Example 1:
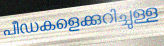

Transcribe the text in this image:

പീഡകളെക്കുറിച്ചുള്ള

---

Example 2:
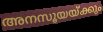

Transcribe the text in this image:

അനസൂയയ്ക്കും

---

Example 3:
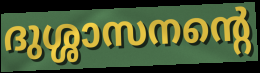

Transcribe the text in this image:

ദുശ്ശാസനന്റെ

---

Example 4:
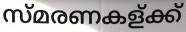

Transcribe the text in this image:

സ്മരണകള്ക്ക്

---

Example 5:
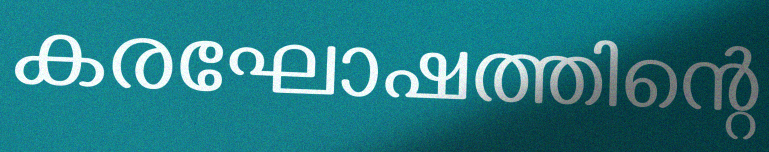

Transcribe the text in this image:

കരഘോഷത്തിന്റെ